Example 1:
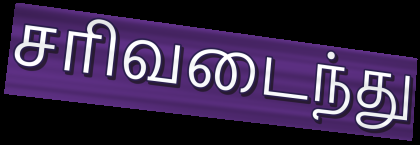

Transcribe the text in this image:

சரிவடைந்து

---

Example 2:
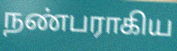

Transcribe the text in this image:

நண்பராகிய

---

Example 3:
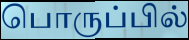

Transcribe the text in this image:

பொருப்பில்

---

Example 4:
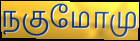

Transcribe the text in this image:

நகுமோமு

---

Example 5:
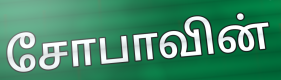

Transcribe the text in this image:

சோபாவின்